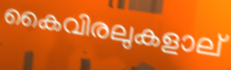
കൈവിരലുകളാല്